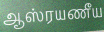
ஆஸ்ரயணீய